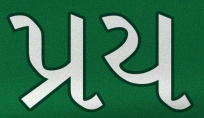
પ્રય